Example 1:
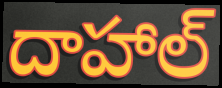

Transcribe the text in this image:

దాహాల్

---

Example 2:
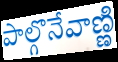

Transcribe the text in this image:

పాల్గొనేవాణ్ణి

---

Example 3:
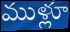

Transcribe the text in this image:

ముళ్లూ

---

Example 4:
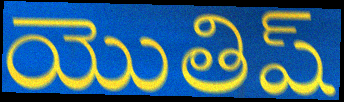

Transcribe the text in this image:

యొతిష్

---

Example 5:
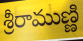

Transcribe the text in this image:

శ్రీరాముణ్ణి